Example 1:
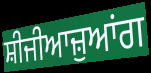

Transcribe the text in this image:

ਸ਼ੀਜੀਆਜ਼ੁਆਂਗ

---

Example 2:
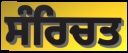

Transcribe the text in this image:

ਸੰਰਿਚਤ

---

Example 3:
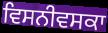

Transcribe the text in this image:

ਵਿਸਨੀਵਸਕਾ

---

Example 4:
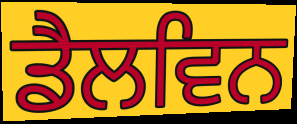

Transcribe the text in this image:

ਡੈਲਵਿਨ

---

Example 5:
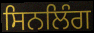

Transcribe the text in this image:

ਸਿਨਲਿੰਗ